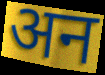
अन